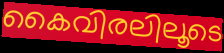
കൈവിരലിലൂടെ